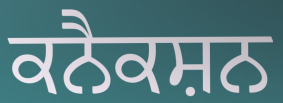
ਕਨੈਕਸ਼ਨ